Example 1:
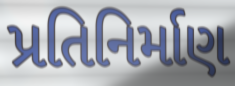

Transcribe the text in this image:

પ્રતિનિર્માણ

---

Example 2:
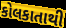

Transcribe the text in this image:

કોલકાતાથી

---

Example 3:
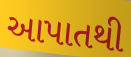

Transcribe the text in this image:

આપાતથી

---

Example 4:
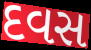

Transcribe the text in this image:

દવસ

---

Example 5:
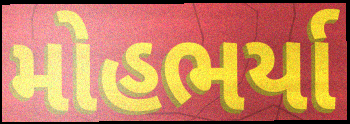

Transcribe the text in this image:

મોહભર્યા